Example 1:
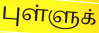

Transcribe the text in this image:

புள்ளுக்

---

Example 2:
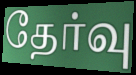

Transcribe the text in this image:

தேர்வு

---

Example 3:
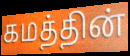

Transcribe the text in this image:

கமத்தின்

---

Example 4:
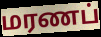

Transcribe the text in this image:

மரணப்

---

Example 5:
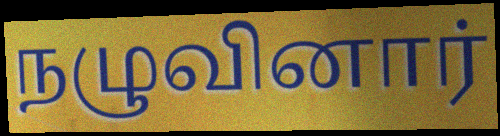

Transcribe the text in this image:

நழுவினார்